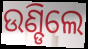
ଉଣ୍ଡିଲେ